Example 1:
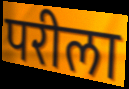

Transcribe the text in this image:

परीला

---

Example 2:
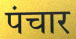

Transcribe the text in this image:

पंचार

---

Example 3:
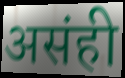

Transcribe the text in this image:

असंही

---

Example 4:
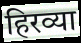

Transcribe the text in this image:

हिरव्या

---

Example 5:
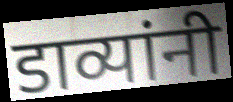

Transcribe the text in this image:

डाव्यांनी